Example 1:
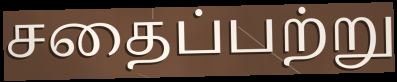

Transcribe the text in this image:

சதைப்பற்று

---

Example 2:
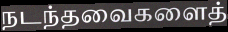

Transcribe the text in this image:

நடந்தவைகளைத்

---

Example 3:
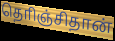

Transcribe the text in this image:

தெரிஞ்சிதான்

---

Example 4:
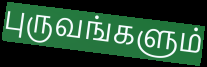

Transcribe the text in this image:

புருவங்களும்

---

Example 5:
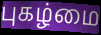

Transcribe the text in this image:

புகழ்மை